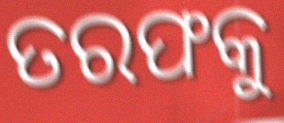
ତରଫକୁ